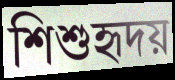
শিশুহৃদয়